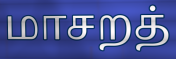
மாசறத்